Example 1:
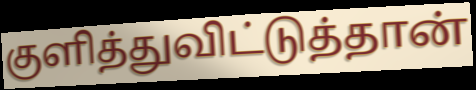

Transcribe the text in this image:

குளித்துவிட்டுத்தான்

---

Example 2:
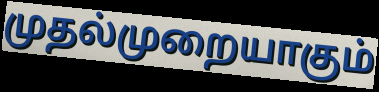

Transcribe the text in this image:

முதல்முறையாகும்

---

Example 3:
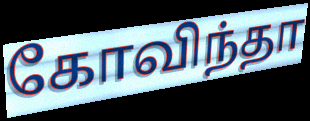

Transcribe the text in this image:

கோவிந்தா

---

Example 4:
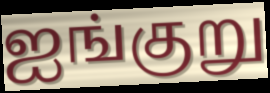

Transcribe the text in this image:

ஐங்குறு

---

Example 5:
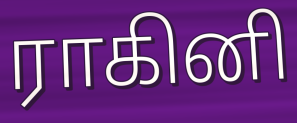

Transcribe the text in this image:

ராகினி